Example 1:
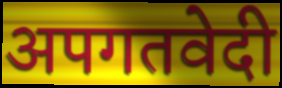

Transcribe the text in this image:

अपगतवेदी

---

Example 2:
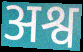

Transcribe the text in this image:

अश्व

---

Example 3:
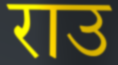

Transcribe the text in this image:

राउ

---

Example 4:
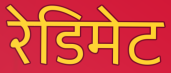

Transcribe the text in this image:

रेडिमेट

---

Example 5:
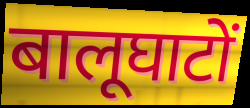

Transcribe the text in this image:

बालूघाटों